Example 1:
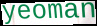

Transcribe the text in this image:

yeoman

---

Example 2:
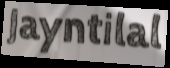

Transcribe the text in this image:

Jayntilal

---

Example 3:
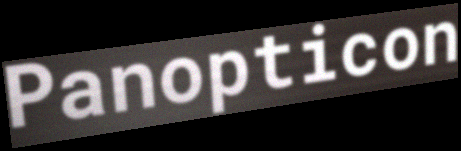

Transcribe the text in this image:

Panopticon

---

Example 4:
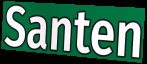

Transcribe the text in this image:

Santen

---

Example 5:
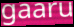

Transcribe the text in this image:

gaaru